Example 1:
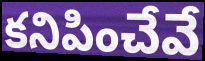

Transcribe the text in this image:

కనిపించేవే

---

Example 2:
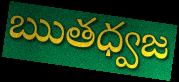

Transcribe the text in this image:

ఋతధ్వజ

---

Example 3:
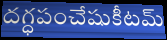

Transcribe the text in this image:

దగ్ధపంచేషుకీటమ్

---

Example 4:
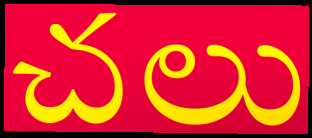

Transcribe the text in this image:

చలు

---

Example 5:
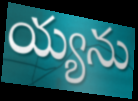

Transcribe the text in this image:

య్యను